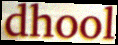
dhool